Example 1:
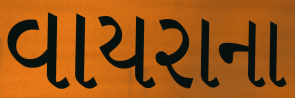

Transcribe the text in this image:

વાયરાના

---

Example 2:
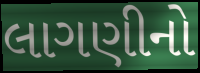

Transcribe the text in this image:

લાગણીનો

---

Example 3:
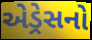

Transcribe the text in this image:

એડ્રેસનો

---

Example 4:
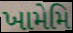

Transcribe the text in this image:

ખામેમિ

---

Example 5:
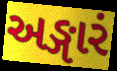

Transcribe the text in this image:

અઙ્ગારં